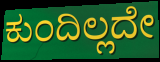
ಕುಂದಿಲ್ಲದೇ